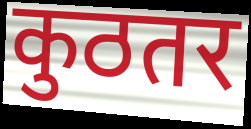
कुठतर